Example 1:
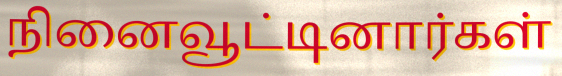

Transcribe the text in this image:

நினைவூட்டினார்கள்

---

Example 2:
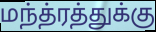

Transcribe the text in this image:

மந்த்ரத்துக்கு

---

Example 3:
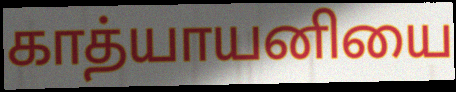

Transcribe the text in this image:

காத்யாயனியை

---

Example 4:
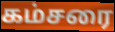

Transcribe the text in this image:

கம்சரை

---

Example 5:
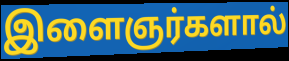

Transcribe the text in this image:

இளைஞர்களால்